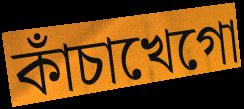
কাঁচাখেগো